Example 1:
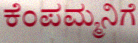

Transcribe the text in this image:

ಕೆಂಪಮ್ಮನಿಗೆ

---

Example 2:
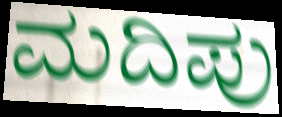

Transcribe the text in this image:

ಮದಿಪು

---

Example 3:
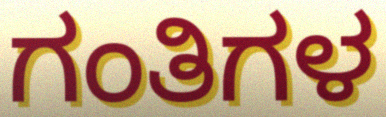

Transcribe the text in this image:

ಗಂತಿಗಳ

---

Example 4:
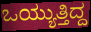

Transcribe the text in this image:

ಒಯ್ಯುತ್ತಿದ್ದ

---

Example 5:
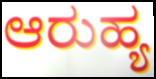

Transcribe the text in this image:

ಆರುಹ್ಯ